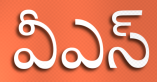
వీఎస్